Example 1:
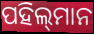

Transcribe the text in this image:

ପହିଲ୍‌ମାନ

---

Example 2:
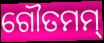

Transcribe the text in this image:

ଗୌତମମ୍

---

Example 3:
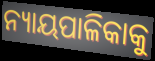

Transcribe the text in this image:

ନ୍ୟାୟପାଳିକାକୁ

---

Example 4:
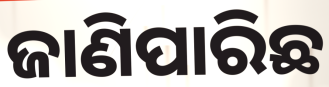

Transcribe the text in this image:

ଜାଣିପାରିଛ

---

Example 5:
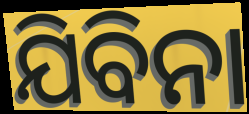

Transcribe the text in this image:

ଯିବିନା